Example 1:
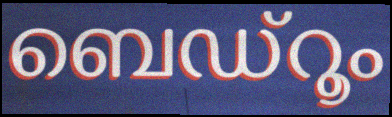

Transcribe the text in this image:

ബെഡ്റൂം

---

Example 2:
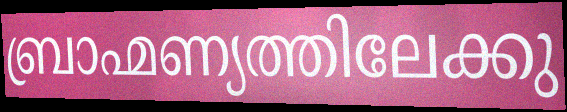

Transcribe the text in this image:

ബ്രാഹ്മണ്യത്തിലേക്കു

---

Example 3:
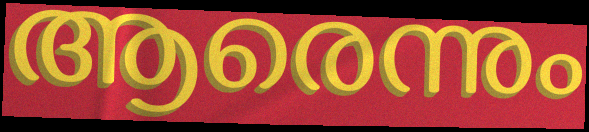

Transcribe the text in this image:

ആരെന്നും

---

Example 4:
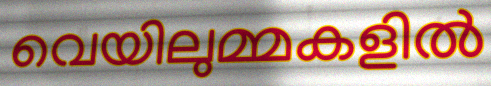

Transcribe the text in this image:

വെയിലുമ്മകളിൽ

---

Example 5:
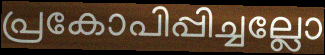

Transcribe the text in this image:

പ്രകോപിപ്പിച്ചല്ലോ